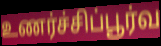
உணர்ச்சிப்பூர்வ